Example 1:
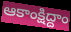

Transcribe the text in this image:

ఆకాంక్షిద్దాం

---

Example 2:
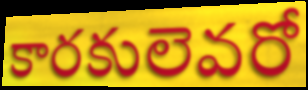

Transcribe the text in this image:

కారకులెవరో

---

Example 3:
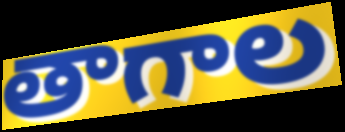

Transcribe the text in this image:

తాగాల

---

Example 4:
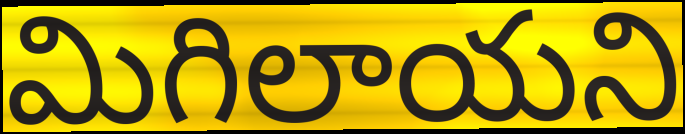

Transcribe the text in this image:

మిగిలాయని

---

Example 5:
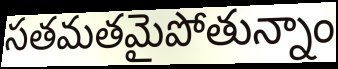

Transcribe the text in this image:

సతమతమైపోతున్నాం